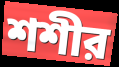
শশীর